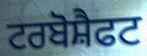
ਟਰਬੋਸ਼ੈਫਟ